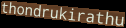
thondrukirathu